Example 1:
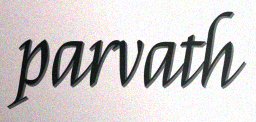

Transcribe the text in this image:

parvath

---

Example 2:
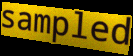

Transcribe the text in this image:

sampled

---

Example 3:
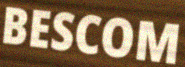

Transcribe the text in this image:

BESCOM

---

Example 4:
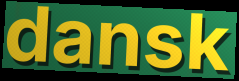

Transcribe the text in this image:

dansk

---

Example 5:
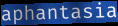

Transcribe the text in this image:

aphantasia